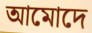
আমোদে